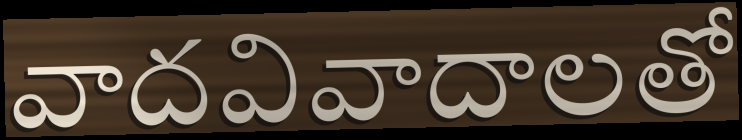
వాదవివాదాలతో